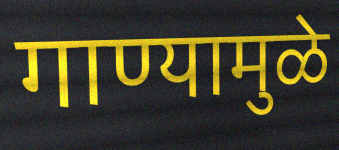
गाण्यामुळे